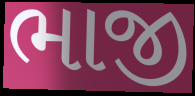
ભાજી